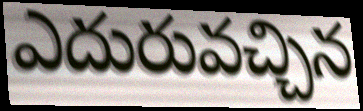
ఎదురువచ్చిన